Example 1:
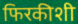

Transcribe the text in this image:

फिरकीशी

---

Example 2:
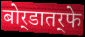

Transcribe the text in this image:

बोर्डातर्फे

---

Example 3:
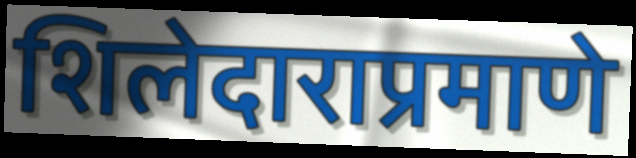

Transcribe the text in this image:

शिलेदाराप्रमाणे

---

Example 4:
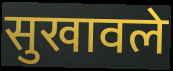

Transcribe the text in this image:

सुखावले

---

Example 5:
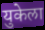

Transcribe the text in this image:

युकेला